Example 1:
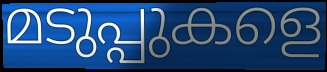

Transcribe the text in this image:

മടുപ്പുകളെ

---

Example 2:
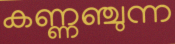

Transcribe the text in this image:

കണ്ണഞ്ചുന്ന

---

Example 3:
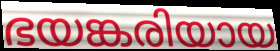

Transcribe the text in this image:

ഭയങ്കരിയായ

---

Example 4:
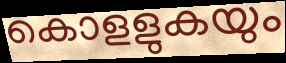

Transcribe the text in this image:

കൊളളുകയും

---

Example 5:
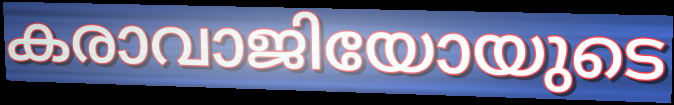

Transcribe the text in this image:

കരാവാജിയോയുടെ